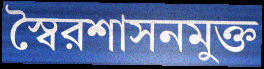
স্বৈরশাসনমুক্ত